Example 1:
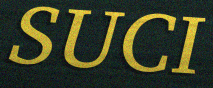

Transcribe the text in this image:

SUCI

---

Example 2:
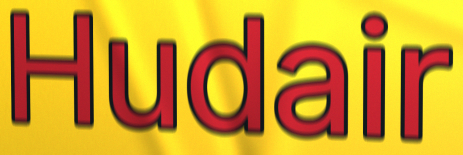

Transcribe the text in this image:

Hudair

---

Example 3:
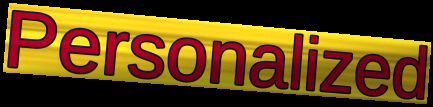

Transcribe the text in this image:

Personalized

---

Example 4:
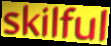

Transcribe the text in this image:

skilful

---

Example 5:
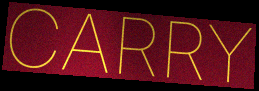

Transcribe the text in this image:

CARRY